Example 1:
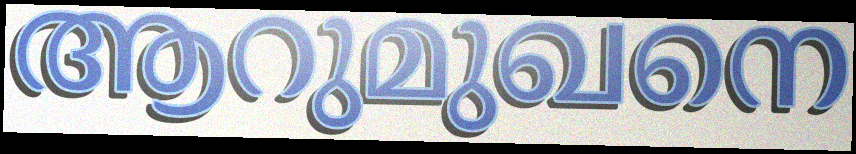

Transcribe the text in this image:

ആറുമുഖനെ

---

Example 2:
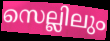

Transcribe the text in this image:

സെല്ലിലും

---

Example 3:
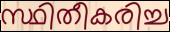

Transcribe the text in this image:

സ്ഥിതീകരിച്ച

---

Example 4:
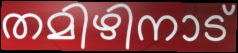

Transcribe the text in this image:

തമിഴിനാട്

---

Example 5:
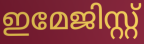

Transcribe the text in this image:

ഇമേജിസ്റ്റ്